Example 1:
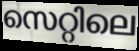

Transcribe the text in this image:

സെറ്റിലെ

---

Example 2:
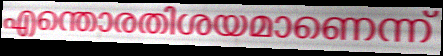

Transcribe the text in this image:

എന്തൊരതിശയമാണെന്ന്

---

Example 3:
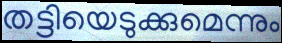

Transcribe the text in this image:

തട്ടിയെടുക്കുമെന്നും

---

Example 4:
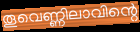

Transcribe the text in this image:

തൂവെണ്ണിലാവിന്റെ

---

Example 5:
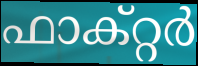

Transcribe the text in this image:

ഫാക്റ്റർ